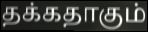
தக்கதாகும்